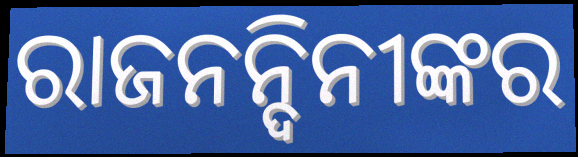
ରାଜନନ୍ଦିନୀଙ୍କର